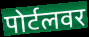
पोर्टलवर